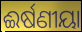
ଈର୍ଷଣୀୟା